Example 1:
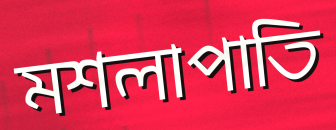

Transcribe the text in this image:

মশলাপাতি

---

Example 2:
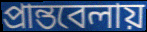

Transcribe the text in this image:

প্রান্তবেলায়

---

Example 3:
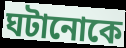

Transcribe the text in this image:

ঘটানোকে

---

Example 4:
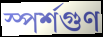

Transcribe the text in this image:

স্পর্শগুণ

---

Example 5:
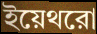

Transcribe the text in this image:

ইয়েথরো